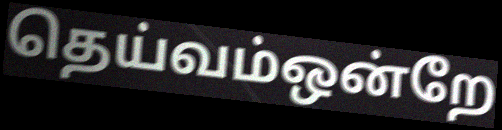
தெய்வம்ஒன்றே